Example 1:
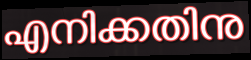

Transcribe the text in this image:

എനിക്കതിനു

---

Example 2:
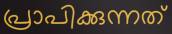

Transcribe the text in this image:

പ്രാപിക്കുന്നത്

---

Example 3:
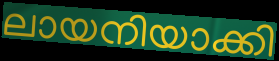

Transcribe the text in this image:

ലായനിയാക്കി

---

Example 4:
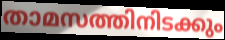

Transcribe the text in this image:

താമസത്തിനിടക്കും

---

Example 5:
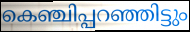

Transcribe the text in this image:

കെഞ്ചിപ്പറഞ്ഞിട്ടും